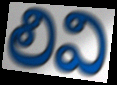
లివి